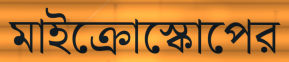
মাইক্রোস্কোপের